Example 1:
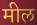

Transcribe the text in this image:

मील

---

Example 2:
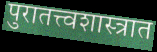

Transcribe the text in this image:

पुरातत्त्वशास्त्रात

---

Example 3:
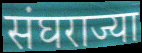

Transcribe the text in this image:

संघराज्या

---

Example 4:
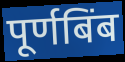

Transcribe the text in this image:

पूर्णबिंब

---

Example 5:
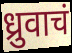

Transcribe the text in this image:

ध्रुवाचं